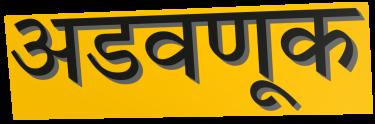
अडवणूक